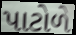
પાટોળે